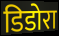
डिडोरा